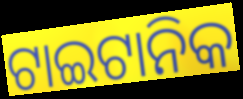
ଟାଇଟାନିକ